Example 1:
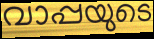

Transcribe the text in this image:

വാപ്പയുടെ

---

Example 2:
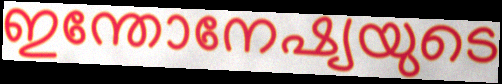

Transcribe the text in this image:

ഇന്തോനേഷ്യയുടെ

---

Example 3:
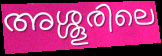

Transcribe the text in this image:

അശ്ശൂരിലെ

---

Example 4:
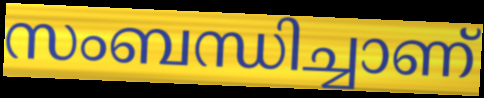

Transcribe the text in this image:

സംബന്ധിച്ചാണ്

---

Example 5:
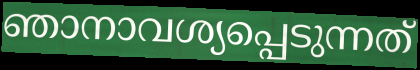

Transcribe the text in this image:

ഞാനാവശ്യപ്പെടുന്നത്